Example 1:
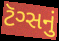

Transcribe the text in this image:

ટૅગ્સનું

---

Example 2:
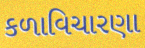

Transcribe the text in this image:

કળાવિચારણા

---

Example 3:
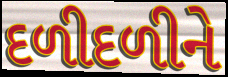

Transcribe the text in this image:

દળીદળીને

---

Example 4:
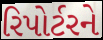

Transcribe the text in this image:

રિપોર્ટરને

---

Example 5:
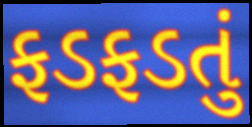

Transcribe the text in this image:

ફડફડતું